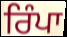
ਰਿੰਪਾ